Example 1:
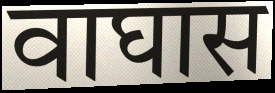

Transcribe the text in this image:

वाघास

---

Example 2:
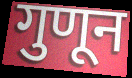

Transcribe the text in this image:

गुणून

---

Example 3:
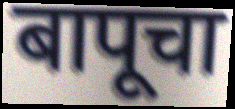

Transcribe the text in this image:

बापूचा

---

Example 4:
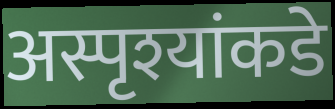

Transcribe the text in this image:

अस्पृश्यांकडे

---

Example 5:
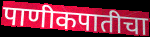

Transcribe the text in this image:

पाणीकपातीचा